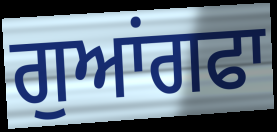
ਗੁਆਂਗਫਾ